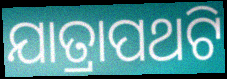
ଯାତ୍ରାପଥଟି